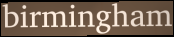
birmingham